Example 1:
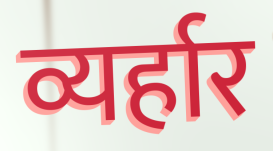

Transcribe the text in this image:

व्यर्हार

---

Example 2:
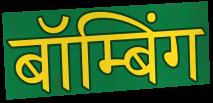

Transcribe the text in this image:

बॉम्बिंग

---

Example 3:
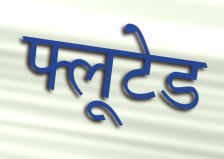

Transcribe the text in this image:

फ्लूटेड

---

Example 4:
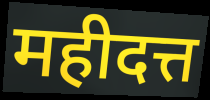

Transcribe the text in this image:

महीदत्त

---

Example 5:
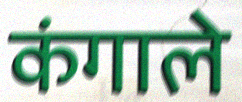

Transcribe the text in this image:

कंगाले